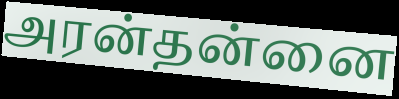
அரன்தன்னை